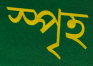
স্পৃহ